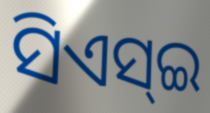
ସିଏସ୍ଇ